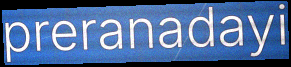
preranadayi